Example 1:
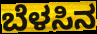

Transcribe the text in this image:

ಬೆಳಸಿನ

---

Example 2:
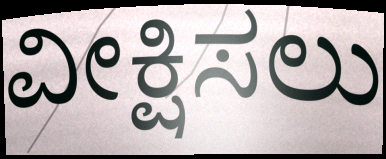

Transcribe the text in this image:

ವೀಕ್ಷಿಸಲು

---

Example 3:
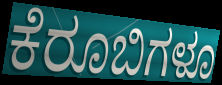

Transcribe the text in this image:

ಕೆರೂಬಿಗಳೂ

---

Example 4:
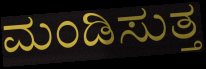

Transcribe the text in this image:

ಮಂಡಿಸುತ್ತ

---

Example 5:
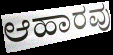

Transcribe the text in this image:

ಆಹಾರವು